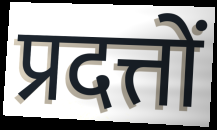
प्रदत्तों